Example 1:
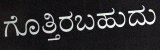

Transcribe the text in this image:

ಗೊತ್ತಿರಬಹುದು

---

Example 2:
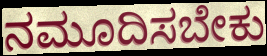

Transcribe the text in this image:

ನಮೂದಿಸಬೇಕು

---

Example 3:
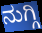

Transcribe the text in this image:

ನುಗ್ಗಿ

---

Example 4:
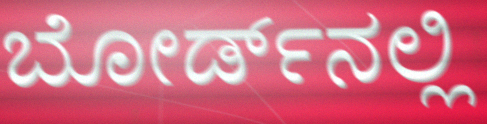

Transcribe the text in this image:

ಬೋರ್ಡ್‌ನಲ್ಲಿ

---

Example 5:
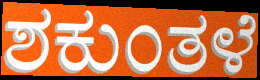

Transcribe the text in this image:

ಶಕುಂತಳೆ